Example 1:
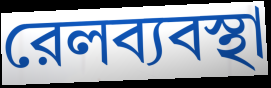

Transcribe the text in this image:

রেলব্যবস্থা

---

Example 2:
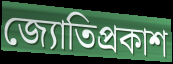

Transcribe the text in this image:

জ্যোতিপ্রকাশ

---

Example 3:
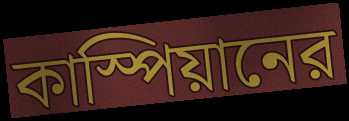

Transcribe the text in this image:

কাস্পিয়ানের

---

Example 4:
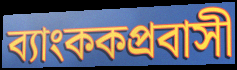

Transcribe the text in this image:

ব্যাংককপ্রবাসী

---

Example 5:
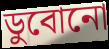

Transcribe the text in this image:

ডুবোনো